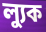
ল্যুক